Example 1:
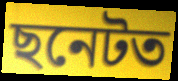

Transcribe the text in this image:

ছনেটত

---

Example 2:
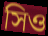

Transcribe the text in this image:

সিও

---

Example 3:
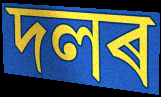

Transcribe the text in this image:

দলৰ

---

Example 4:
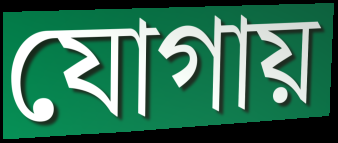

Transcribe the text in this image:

যোগায়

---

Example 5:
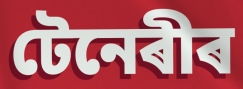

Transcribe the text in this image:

টেনেৰীৰ